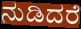
ನುಡಿದರೆ